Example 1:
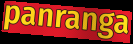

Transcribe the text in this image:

panranga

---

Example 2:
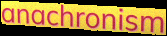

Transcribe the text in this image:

anachronism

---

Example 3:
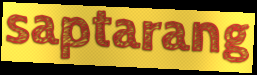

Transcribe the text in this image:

saptarang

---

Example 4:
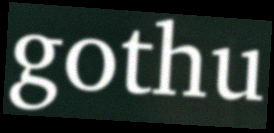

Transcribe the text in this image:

gothu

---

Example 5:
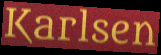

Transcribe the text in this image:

Karlsen